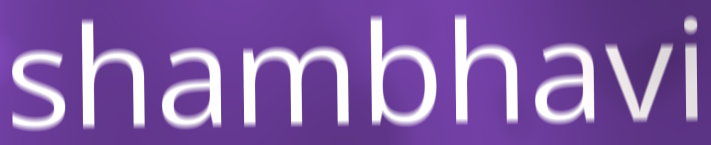
shambhavi